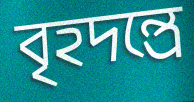
বৃহদন্ত্রে